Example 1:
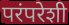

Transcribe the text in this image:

परंपरेशी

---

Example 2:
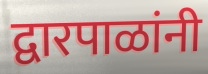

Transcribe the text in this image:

द्वारपाळांनी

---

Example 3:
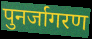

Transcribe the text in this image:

पुनर्जागरण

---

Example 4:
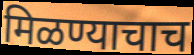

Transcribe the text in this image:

मिळण्याचाच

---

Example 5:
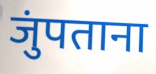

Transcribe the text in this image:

जुंपताना